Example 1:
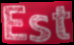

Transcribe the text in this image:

Est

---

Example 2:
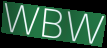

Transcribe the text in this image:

WBW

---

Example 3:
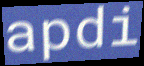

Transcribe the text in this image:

apdi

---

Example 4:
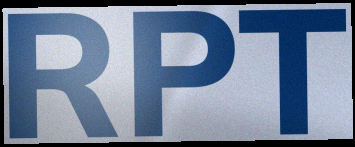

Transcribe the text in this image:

RPT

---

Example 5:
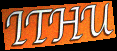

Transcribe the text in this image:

ITHU